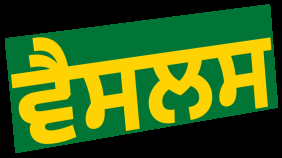
ਵੈਸਲਸ